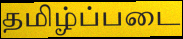
தமிழ்ப்படை